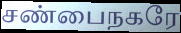
சண்பைநகரே